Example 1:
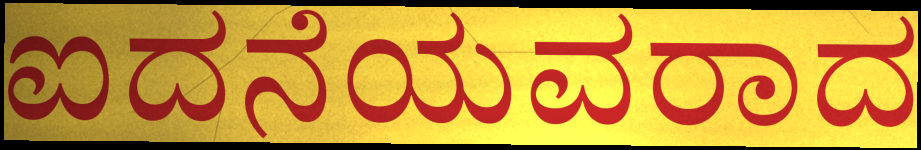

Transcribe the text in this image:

ಐದನೆಯವರಾದ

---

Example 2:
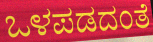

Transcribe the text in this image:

ಒಳಪಡದಂತೆ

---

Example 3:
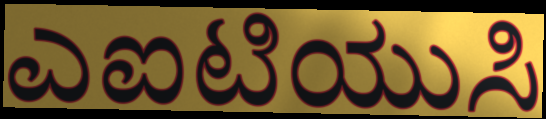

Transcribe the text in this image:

ಎಐಟಿಯುಸಿ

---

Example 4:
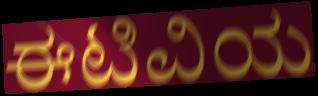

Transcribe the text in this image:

ಈಟಿವಿಯ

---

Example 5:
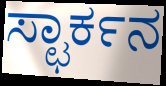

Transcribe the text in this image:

ಸ್ಟಾರ್ಕನ